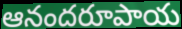
ఆనందరూపాయ